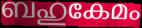
ബഹുകേമം